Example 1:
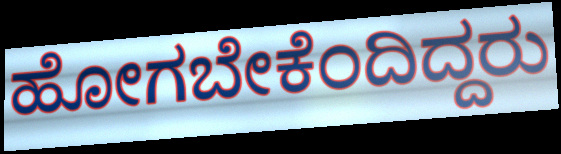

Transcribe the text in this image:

ಹೋಗಬೇಕೆಂದಿದ್ದರು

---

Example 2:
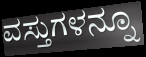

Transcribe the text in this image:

ವಸ್ತುಗಳನ್ನೂ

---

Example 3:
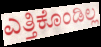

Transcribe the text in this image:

ಎತ್ತಿಕೊಂಡಿಲ್ಲ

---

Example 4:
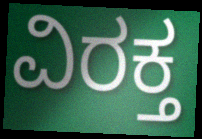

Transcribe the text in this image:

ವಿರಕ್ತ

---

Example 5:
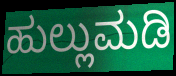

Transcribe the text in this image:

ಹುಲ್ಲುಮಡಿ